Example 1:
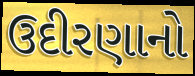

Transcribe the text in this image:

ઉદીરણાનો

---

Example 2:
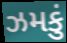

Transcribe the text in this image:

ઝમકું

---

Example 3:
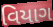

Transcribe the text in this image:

વિયાગ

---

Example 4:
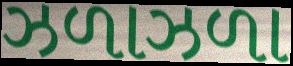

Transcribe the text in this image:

ઝળાઝળા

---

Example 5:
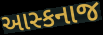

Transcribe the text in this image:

આસ્કનાજ